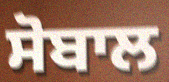
ਸੋਬਾਲ